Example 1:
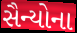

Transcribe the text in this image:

સૈન્યોના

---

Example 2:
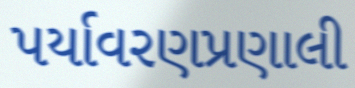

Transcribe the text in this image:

પર્યાવરણપ્રણાલી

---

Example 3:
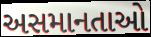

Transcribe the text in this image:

અસમાનતાઓ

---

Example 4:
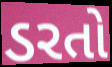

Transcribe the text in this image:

ડરતો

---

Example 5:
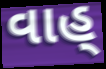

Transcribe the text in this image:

વાહ્